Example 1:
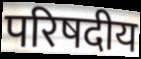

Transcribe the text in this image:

परिषदीय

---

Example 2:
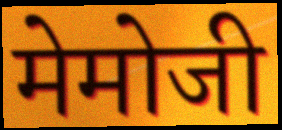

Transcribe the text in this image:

मेमोजी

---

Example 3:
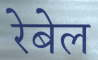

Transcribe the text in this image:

रेबेल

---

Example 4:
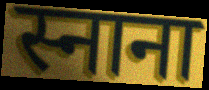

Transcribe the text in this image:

स्नाना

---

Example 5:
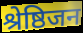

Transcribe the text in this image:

श्रेष्ठिजन